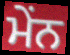
ਮੇਂਨ